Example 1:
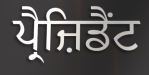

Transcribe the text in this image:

ਪ੍ਰੈਜ਼ਿਡੈਂਟ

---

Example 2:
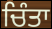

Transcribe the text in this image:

ਚਿੰਤਾ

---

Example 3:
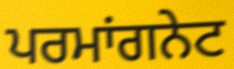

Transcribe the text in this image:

ਪਰਮਾਂਗਨੇਟ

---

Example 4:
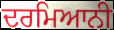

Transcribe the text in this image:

ਦਰਮਿਆਨੀ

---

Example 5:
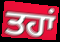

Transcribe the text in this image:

ਤਹਾਂ